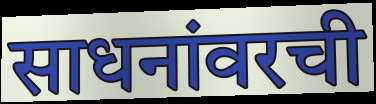
साधनांवरची